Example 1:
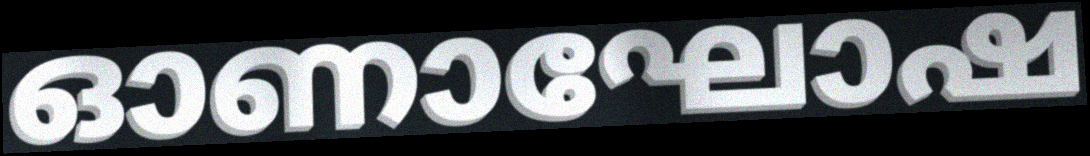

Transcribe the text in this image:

ഓണാഘോഷ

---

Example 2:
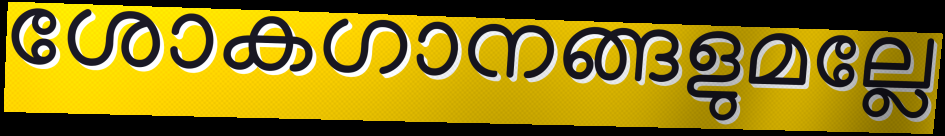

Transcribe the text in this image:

ശോകഗാനങ്ങളുമല്ലേ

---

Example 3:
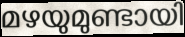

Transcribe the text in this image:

മഴയുമുണ്ടായി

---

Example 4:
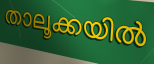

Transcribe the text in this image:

താലൂക്കയിൽ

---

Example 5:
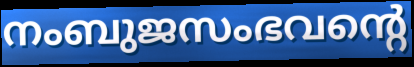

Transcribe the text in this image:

നംബുജസംഭവന്റെ